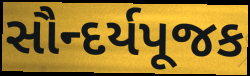
સૌન્દર્યપૂજક